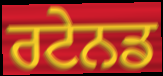
ਰਟੇਨਡ